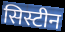
सिस्टीन